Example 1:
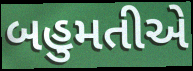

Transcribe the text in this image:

બહુમતીએ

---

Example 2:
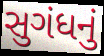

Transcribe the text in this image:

સુગંધનું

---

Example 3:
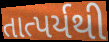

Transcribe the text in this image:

તાત્પર્યથી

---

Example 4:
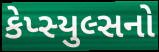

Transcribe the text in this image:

કેપ્સ્યુલ્સનો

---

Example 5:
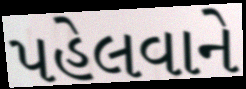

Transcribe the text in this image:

પહેલવાને